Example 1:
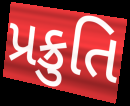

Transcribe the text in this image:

પ્રક્રુતિ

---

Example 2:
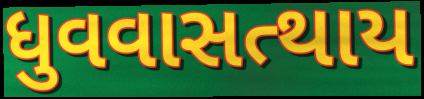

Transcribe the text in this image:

ધુવવાસત્થાય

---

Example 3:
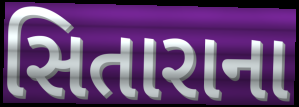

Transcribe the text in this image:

સિતારાના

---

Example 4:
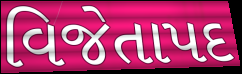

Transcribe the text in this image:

વિજેતાપદ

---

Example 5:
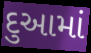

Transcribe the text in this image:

દુઆમાં